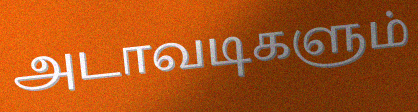
அடாவடிகளும்